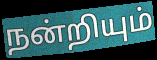
நன்றியும்